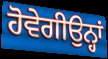
ਹੋਵੇਗੀਉਨ੍ਹਾਂ